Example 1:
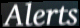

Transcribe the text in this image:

Alerts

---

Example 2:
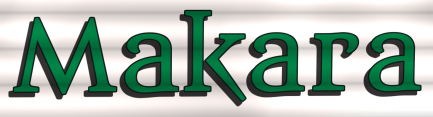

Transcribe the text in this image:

Makara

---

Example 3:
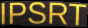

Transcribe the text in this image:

IPSRT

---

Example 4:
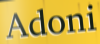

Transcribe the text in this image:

Adoni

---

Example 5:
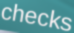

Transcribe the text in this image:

checks